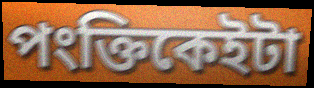
পংক্তিকেইটা